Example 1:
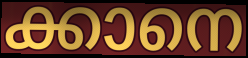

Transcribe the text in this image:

ക്കാനെ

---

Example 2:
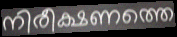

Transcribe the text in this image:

നിരീക്ഷണത്തെ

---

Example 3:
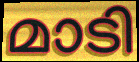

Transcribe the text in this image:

മാടി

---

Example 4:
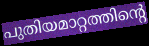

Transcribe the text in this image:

പുതിയമാറ്റത്തിന്റെ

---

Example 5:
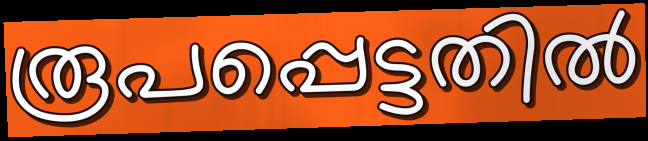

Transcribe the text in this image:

രൂപപ്പെട്ടതിൽ